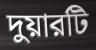
দুয়ারটি